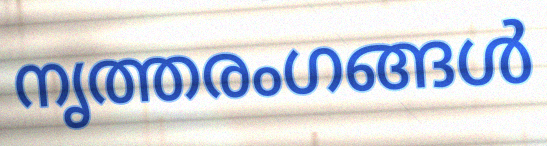
നൃത്തരംഗങ്ങൾ